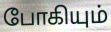
போகியும்